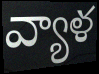
వ్యాళ